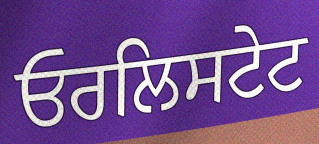
ਓਰਲਿਸਟੇਟ